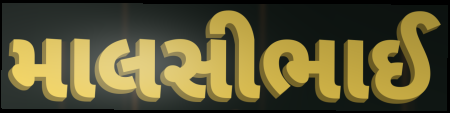
માલસીભાઈ